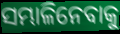
ସମ୍ଭାଳିନେବାକୁ